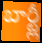
బార్ట్లీ